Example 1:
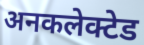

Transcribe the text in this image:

अनकलेक्टेड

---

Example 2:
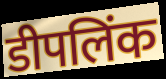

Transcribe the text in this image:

डीपलिंक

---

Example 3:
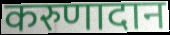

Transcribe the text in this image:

करुणादान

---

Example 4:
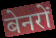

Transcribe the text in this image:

बेनरों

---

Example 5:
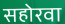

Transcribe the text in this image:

सहोरवा